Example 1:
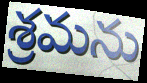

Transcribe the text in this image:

శ్రమను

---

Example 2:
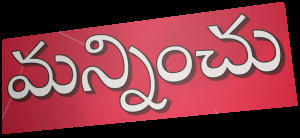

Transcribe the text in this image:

మన్నించు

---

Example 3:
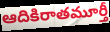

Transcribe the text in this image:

ఆదికిరాతమూర్తీ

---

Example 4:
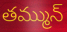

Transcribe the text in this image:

తమ్మున్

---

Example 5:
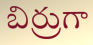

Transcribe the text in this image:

బిర్రుగా